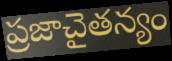
ప్రజాచైతన్యం